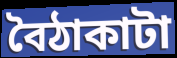
বৈঠাকাটা